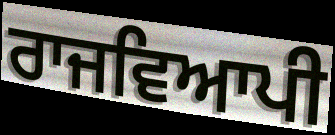
ਰਾਜਵਿਆਪੀ